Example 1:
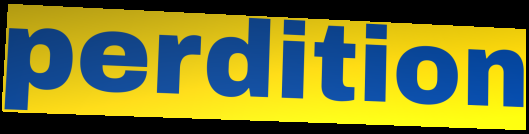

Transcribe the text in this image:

perdition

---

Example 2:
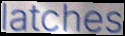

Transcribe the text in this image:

latches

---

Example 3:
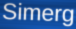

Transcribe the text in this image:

Simerg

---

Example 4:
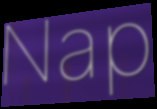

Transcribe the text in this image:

Nap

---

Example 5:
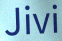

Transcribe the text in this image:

Jivi